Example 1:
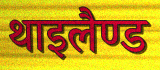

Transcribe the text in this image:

थाइलैण्ड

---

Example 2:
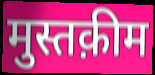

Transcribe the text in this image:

मुस्तक़ीम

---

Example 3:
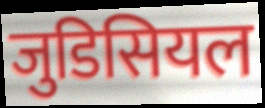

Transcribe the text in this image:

जुडिसियल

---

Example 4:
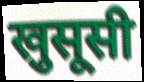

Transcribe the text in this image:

खुसूसी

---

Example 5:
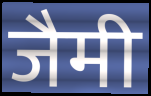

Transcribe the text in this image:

जैमी